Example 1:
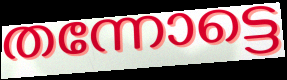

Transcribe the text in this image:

തന്നോട്ടെ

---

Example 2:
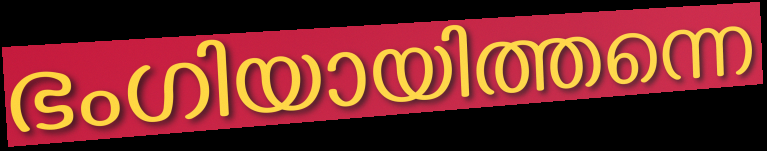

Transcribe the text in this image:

ഭംഗിയായിത്തന്നെ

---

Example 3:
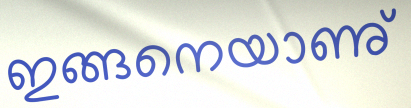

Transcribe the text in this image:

ഇങ്ങനെയാണു്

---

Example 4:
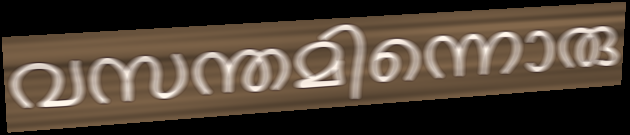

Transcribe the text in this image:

വസന്തമിന്നൊരു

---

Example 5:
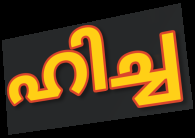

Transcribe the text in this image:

ഹിച്ച